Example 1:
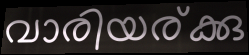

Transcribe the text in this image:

വാരിയര്ക്കു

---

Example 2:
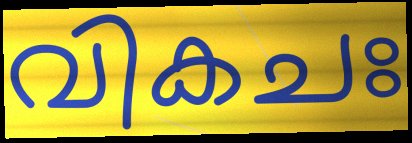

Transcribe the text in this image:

വികചഃ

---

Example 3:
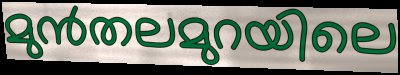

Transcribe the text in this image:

മുൻതലമുറയിലെ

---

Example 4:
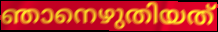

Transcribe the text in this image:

ഞാനെഴുതിയത്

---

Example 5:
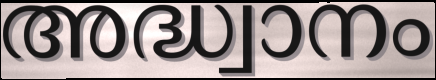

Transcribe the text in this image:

അദ്ധ്വാനം